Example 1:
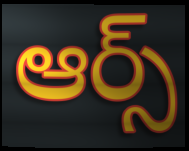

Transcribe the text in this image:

ఆర్స్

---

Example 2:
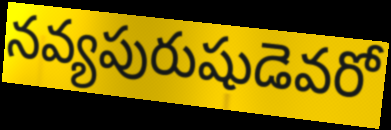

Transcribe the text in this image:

నవ్యపురుషుడెవరో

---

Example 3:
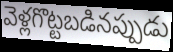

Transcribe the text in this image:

వెళ్లగొట్టబడినప్పుడు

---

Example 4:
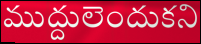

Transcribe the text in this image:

ముద్దులెందుకని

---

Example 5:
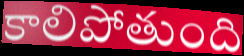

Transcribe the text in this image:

కాలిపోతుంది